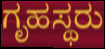
ಗೃಹಸ್ಥರು